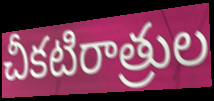
చీకటిరాత్రుల